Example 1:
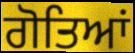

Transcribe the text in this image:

ਗੋਤਿਆਂ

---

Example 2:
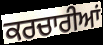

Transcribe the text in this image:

ਕਰਚਾਰੀਆਂ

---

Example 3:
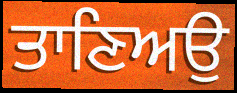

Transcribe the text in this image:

ਤਾਣਿਅਉ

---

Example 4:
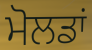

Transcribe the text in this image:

ਮੋਲਡਾਂ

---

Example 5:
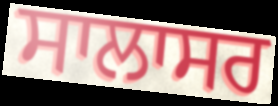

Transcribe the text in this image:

ਸਾਲਾਸਰ